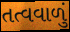
તત્વવાળું